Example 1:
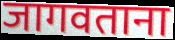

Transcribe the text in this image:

जागवताना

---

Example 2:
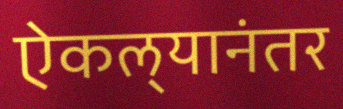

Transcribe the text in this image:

ऐकल्यानंतर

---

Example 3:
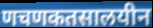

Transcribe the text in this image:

णचणकतसालयीन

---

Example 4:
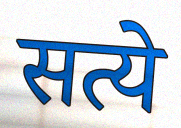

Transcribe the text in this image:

सत्ये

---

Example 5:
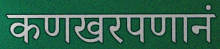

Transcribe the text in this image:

कणखरपणानं